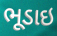
ભૂડાઇ